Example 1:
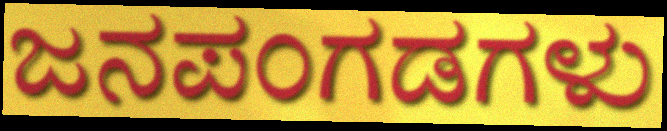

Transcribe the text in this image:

ಜನಪಂಗಡಗಳು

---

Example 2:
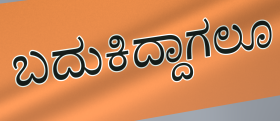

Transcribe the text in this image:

ಬದುಕಿದ್ದಾಗಲೂ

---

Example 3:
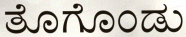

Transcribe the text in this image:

ತೊಗೊಂಡು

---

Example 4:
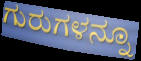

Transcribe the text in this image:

ಗುರುಗಳನ್ನೂ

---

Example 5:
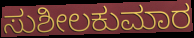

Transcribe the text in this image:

ಸುಶೀಲಕುಮಾರ